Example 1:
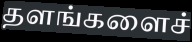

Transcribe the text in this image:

தளங்களைச்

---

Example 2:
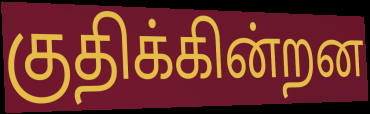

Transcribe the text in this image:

குதிக்கின்றன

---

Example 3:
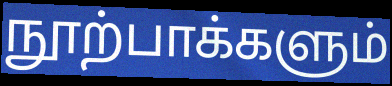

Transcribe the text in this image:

நூற்பாக்களும்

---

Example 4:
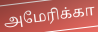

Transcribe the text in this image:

அமேரிக்கா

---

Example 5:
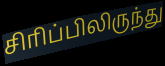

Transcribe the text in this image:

சிரிப்பிலிருந்து